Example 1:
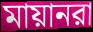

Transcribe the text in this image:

মায়ানরা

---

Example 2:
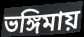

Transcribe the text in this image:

ভঙ্গিমায়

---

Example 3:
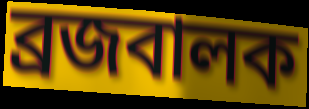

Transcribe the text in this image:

ব্রজবালক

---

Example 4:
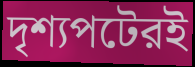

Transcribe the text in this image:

দৃশ্যপটেরই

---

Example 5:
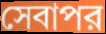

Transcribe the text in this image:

সেবাপর